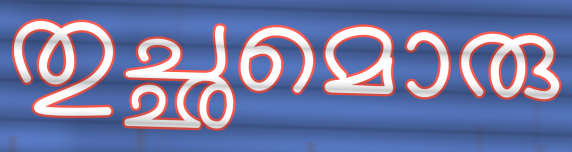
തുച്ഛമൊരു